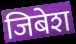
जिबेश